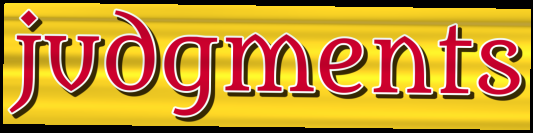
judgments